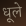
धूले